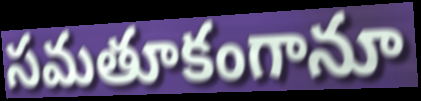
సమతూకంగానూ